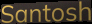
Santosh